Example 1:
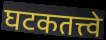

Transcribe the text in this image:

घटकतत्त्वे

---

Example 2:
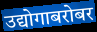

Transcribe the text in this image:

उद्योगाबरोबर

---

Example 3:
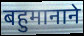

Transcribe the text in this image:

बहुमानाने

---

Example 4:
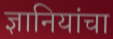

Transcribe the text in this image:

ज्ञानियांचा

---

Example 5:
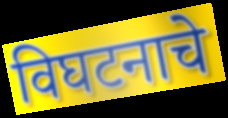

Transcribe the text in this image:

विघटनाचे